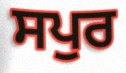
ਸਪੁਰ